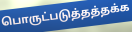
பொருட்படுத்தத்தக்க